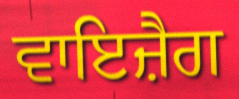
ਵਾਇਜ਼ੈਗ